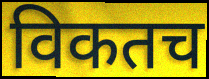
विकतच